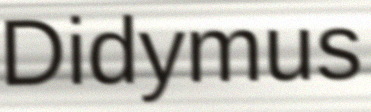
Didymus